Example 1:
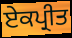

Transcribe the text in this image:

ਏਕਪ੍ਰੀਤ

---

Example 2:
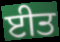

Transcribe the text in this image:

ਈਤ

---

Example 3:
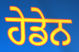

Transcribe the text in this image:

ਹੇਡੇਨ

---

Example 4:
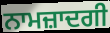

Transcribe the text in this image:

ਨਾਮਜ਼ਾਦਗੀ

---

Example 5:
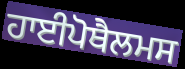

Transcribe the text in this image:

ਹਾਈਪੋਥੈਲਮਸ